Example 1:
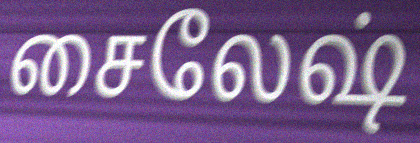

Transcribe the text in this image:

சைலேஷ்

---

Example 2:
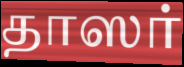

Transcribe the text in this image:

தாஸர்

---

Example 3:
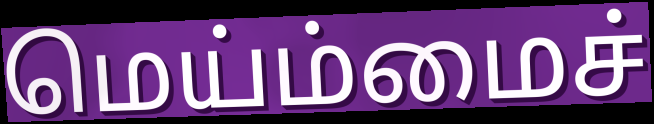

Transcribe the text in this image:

மெய்ம்மைச்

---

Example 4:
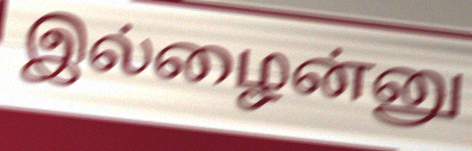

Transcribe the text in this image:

இல்ழைன்னு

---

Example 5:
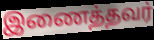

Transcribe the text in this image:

இணைத்தவர்